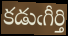
కడుఁగీర్తి